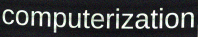
computerization